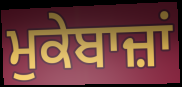
ਮੁਕੇਬਾਜ਼ਾਂ